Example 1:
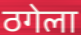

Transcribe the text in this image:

ठगेला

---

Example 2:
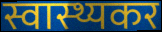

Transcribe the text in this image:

स्वास्थ्यकर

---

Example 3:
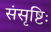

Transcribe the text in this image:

संसृष्टिः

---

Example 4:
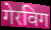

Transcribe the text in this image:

गेरविग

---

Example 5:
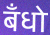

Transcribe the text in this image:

बँधो